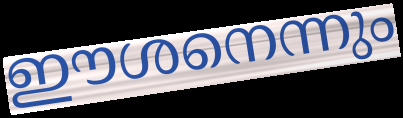
ഈശനെന്നും